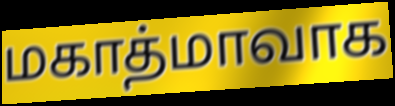
மகாத்மாவாக